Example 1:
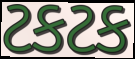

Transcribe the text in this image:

ટકટક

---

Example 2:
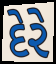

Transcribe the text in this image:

દેરે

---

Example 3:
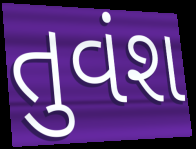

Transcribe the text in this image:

તુવંશ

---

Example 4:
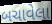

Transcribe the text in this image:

બચાવેલા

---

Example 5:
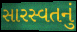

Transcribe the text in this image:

સારસ્વતનું